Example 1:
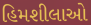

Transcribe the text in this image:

હિમશીલાઓ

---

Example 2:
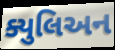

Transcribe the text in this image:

ક્યુલિઅન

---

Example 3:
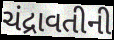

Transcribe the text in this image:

ચંદ્રાવતીની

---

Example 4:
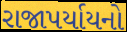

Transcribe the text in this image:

રાજાપર્યાયનો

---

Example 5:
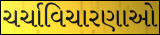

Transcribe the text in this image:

ચર્ચાવિચારણાઓ